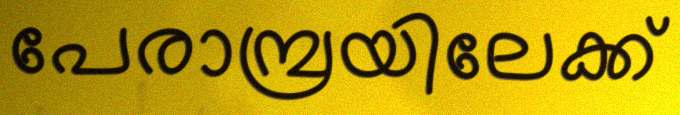
പേരാമ്പ്രയിലേക്ക്